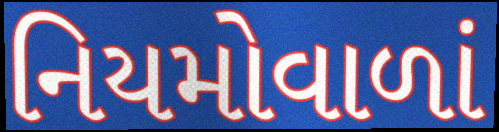
નિયમોવાળાં